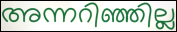
അന്നറിഞ്ഞില്ല